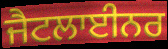
ਜੈਟਲਾਈਨਰ